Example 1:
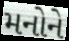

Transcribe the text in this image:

મનોને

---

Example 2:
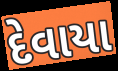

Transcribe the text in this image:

દેવાયા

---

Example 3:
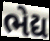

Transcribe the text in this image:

ભેદ્ય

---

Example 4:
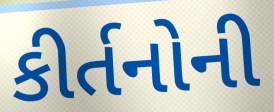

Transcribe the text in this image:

કીર્તનોની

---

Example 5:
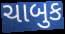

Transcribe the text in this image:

ચાબુક